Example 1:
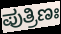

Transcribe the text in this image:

ಪುತ್ರಿಣಃ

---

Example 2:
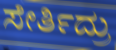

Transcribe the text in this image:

ಸೇರ್ತಿದ್ರು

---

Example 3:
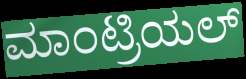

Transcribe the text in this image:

ಮಾಂಟ್ರಿಯಲ್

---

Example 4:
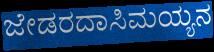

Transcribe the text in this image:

ಜೇಡರದಾಸಿಮಯ್ಯನ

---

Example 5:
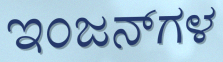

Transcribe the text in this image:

ಇಂಜನ್‌ಗಳ